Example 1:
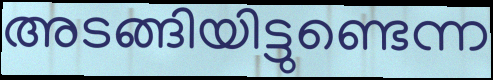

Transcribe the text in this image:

അടങ്ങിയിട്ടുണ്ടെന്ന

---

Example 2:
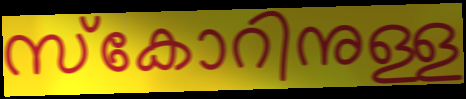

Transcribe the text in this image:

സ്കോറിനുള്ള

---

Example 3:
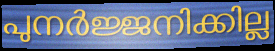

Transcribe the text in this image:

പുനർജ്ജനിക്കില്ല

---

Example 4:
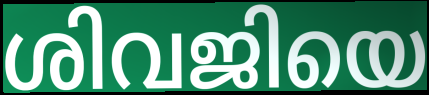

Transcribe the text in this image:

ശിവജിയെ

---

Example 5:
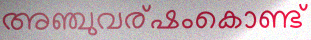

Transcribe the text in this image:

അഞ്ചുവര്ഷംകൊണ്ട്